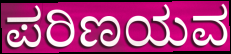
ಪರಿಣಯವ